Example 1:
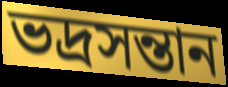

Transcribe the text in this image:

ভদ্রসন্তান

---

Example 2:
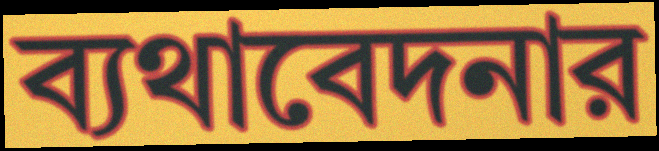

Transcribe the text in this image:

ব্যথাবেদনার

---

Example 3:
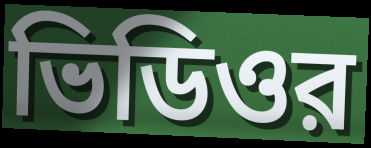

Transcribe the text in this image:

ভিডিওর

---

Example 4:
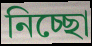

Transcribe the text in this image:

নিচ্ছো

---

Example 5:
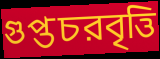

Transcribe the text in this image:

গুপ্তচরবৃত্তি